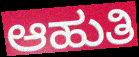
ಆಹುತಿ